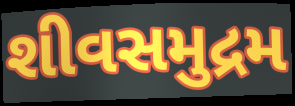
શીવસમુદ્રમ